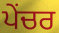
ਪੇਂਚਰ